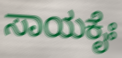
ಸಾಯಕೈಃ